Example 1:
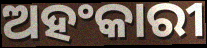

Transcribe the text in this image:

ଅହଂକାରୀ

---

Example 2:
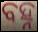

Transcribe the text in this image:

ବହ୍ନ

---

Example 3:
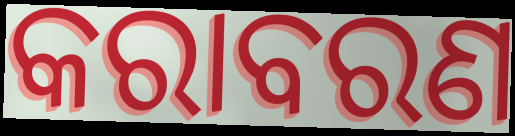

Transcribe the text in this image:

କରାବରଣ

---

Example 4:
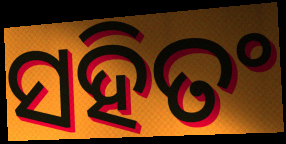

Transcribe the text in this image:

ସହିତଂ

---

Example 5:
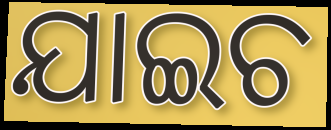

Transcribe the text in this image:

ଯାଇଚ